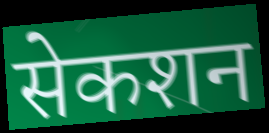
सेकशन